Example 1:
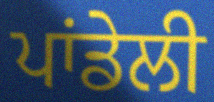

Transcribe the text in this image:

ਪਾਂਡੇਲੀ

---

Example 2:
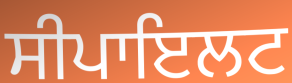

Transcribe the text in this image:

ਸੀਪਾਇਲਟ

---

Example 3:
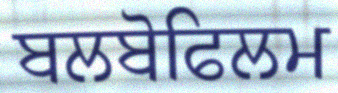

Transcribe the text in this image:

ਬਲਬੋਫਿਲਮ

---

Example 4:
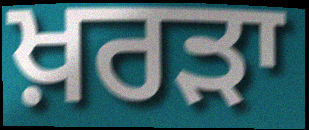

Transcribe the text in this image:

ਖ਼ਰੜਾ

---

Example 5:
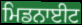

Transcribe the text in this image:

ਮਿਡਨਾਈਟ